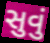
સુવું